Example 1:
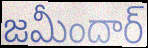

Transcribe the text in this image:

జమీందార్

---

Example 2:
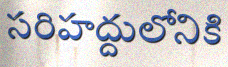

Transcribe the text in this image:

సరిహద్దులోనికి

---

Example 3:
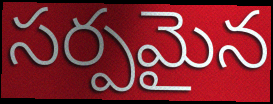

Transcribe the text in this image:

సర్పమైన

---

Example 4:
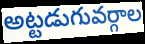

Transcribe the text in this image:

అట్టడుగువర్గాల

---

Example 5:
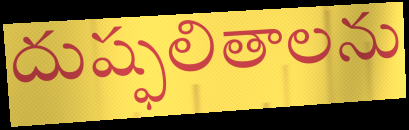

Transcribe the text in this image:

దుష్ఫలితాలను